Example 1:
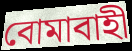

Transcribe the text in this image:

বোমাবাহী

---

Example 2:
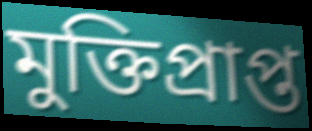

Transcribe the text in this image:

মুক্তিপ্রাপ্ত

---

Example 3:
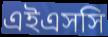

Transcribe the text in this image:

এইএসসি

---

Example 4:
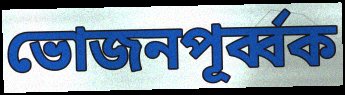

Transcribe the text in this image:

ভোজনপূর্ব্বক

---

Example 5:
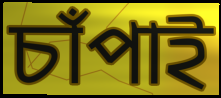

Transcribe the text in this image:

চাঁপাই